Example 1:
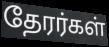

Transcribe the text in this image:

தேரர்கள்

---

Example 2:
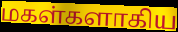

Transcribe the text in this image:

மகள்களாகிய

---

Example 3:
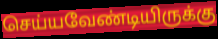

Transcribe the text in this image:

செய்யவேண்டியிருக்கு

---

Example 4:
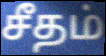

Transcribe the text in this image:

சீதம்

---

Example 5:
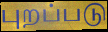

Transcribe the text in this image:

புறப்படு